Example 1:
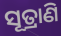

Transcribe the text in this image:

ସୂତ୍ରାଣି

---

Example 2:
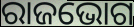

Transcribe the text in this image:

ରାଜଭୋଗ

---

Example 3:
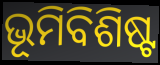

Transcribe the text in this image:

ଭୂମିବିଶିଷ୍ଟ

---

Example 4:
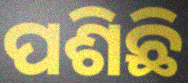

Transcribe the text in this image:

ପଶିଛି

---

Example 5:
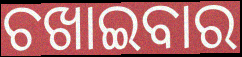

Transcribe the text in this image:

ଚଖାଇବାର